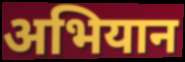
अभियान